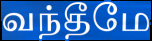
வந்தீமே